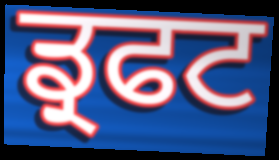
ਡ੍ਰਫਟ